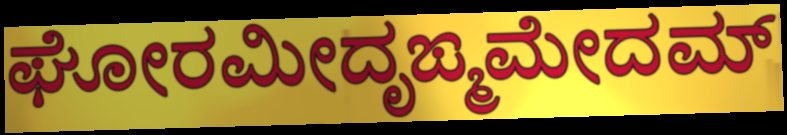
ಘೋರಮೀದೃಙ್ಮಮೇದಮ್